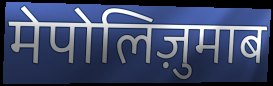
मेपोलिज़ुमाब